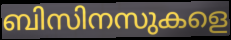
ബിസിനസുകളെ